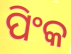
ପିଂକ